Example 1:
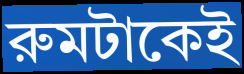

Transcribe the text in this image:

রুমটাকেই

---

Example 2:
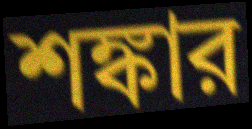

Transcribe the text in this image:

শঙ্কার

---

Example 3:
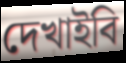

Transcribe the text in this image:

দেখাইবি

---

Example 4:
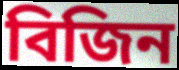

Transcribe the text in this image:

বিজিন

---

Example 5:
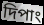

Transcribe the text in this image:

দিপাং